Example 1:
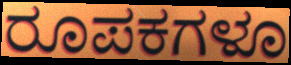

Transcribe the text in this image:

ರೂಪಕಗಳೂ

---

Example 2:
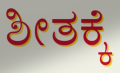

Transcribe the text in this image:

ಶೀತಕ್ಕೆ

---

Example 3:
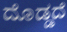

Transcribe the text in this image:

ದೊಡ್ಡದೆ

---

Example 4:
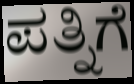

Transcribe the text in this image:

ಪತ್ನಿಗೆ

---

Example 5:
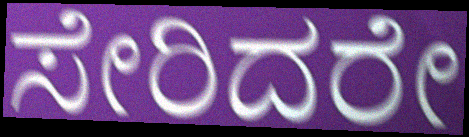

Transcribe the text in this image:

ಸೇರಿದರೇ